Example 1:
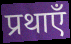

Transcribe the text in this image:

प्रथाएँ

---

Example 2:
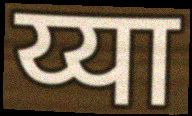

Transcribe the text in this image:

य्या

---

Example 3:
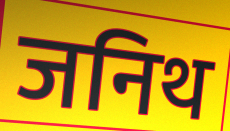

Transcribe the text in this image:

जनिथ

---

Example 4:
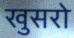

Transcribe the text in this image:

खुसरो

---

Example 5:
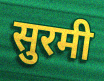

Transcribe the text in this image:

सुरमी